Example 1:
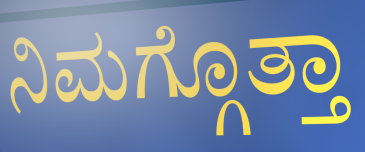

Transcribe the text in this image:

ನಿಮಗ್ಗೊತ್ತಾ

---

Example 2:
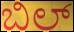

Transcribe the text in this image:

ಬಿಲ್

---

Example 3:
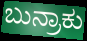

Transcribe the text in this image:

ಬುನ್ರಾಕು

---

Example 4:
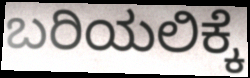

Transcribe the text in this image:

ಬರಿಯಲಿಕ್ಕೆ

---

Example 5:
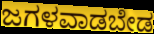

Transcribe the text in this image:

ಜಗಳವಾಡಬೇಡ